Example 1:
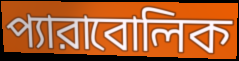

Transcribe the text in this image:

প্যারাবোলিক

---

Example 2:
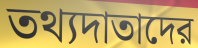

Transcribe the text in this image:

তথ্যদাতাদের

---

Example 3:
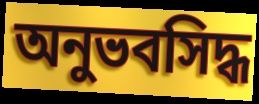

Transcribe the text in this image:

অনুভবসিদ্ধ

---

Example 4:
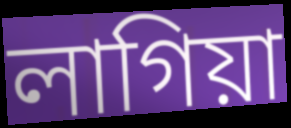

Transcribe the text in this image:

লাগিয়া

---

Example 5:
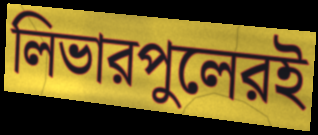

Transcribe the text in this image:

লিভারপুলেরই